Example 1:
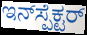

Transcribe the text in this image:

ಇನ್‌ಸ್ಪೆಕ್ಟರ್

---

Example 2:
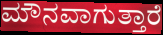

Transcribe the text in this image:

ಮೌನವಾಗುತ್ತಾರೆ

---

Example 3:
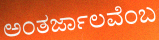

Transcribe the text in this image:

ಅಂತರ್ಜಾಲವೆಂಬ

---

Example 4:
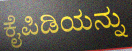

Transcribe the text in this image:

ಕೈಪಿಡಿಯನ್ನು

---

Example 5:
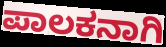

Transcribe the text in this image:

ಪಾಲಕನಾಗಿ